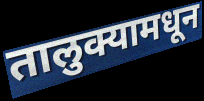
तालुक्यामधून